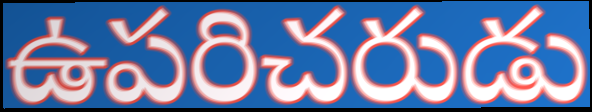
ఉపరిచరుడు